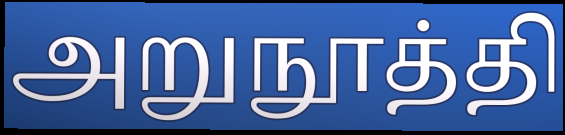
அறுநூத்தி